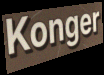
Konger